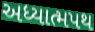
અધ્યાત્મપથ